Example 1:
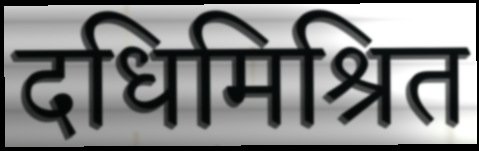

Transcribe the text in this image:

दधिमिश्रित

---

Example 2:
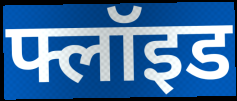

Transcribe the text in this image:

फ्लॉइड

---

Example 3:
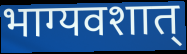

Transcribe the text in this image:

भाग्यवशात्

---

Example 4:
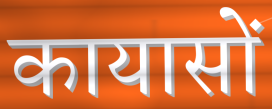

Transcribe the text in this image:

कायासों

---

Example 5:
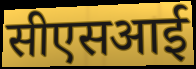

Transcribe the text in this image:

सीएसआई